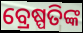
ବ୍ରେଷ୍ପତିଙ୍କ